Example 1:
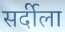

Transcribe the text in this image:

सर्दीला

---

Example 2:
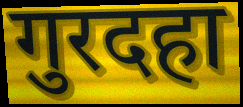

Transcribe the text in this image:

गुरदहा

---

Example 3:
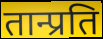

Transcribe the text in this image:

तान्प्रति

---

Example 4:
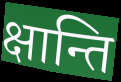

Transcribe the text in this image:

क्षान्ति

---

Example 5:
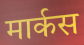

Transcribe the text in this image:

मार्कस